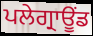
ਪਲੇਗ੍ਰਾਊਂਡ